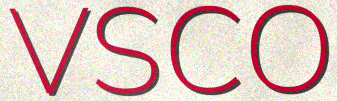
VSCO